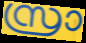
സ്രാ